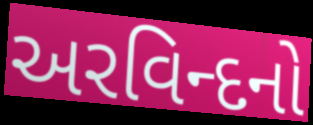
અરવિન્દનો